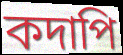
কদাপি